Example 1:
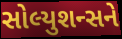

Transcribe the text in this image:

સોલ્યુશન્સને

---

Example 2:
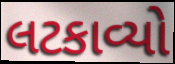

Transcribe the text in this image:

લટકાવ્યો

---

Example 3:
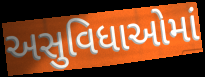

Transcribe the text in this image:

અસુવિધાઓમાં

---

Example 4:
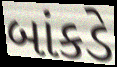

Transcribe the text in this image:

બાંકડે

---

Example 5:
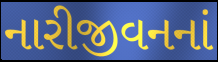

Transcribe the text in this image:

નારીજીવનનાં